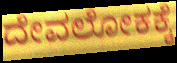
ದೇವಲೋಕಕ್ಕೆ